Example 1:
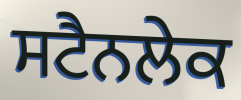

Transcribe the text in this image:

ਸਟੈਨਲੇਕ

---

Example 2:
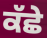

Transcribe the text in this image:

ਕੱਛੇ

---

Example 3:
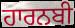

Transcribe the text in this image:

ਹਾਰਨਬੀ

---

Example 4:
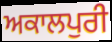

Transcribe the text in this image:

ਅਕਾਲਪੁਰੀ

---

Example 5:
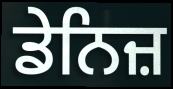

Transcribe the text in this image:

ਡੇਨਿਜ਼